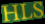
HLS